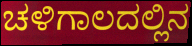
ಚಳಿಗಾಲದಲ್ಲಿನ